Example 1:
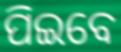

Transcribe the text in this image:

ପିଇବେ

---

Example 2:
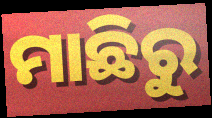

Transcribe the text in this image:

ମାଛିରୁ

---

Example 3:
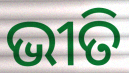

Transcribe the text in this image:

ଭୀତି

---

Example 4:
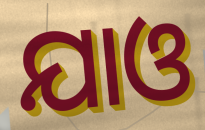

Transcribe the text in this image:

ଯାଓ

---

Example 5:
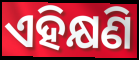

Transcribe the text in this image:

ଏହିକ୍ଷଣି